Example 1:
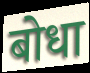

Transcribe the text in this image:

बोधा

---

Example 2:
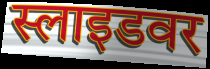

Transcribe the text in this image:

स्‍लाइडवर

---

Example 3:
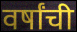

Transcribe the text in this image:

वर्षांची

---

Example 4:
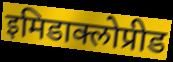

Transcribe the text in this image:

इमिडाक्लोप्रीड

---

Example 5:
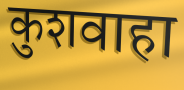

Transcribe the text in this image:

कुशवाहा